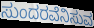
ಸುಂದರವೆನಿಸುವ